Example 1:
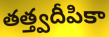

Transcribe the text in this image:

తత్త్వదీపికా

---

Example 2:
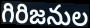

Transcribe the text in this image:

గిరిజనుల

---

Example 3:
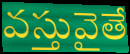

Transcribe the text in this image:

వస్తువైతే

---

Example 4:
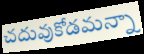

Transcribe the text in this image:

చదువుకోడమన్నా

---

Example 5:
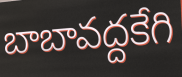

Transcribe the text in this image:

బాబావద్దకేగి